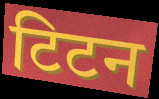
टिटन